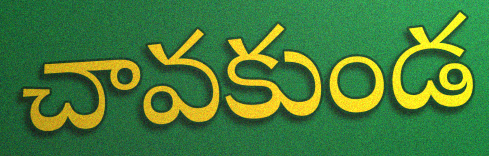
చావకుండ